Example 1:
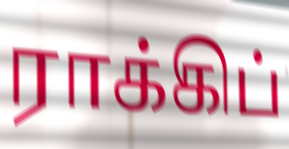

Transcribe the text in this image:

ராக்கிப்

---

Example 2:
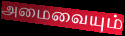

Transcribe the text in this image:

அமைவையும்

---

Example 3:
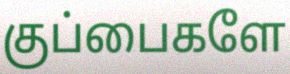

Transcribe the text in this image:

குப்பைகளே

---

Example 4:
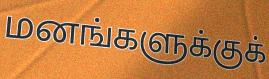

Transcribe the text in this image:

மனங்களுக்குக்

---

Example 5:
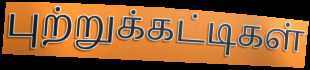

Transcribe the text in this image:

புற்றுக்கட்டிகள்